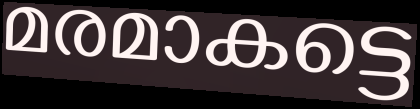
മരമാകട്ടെ